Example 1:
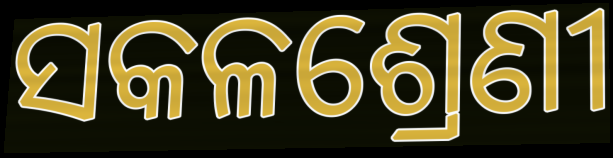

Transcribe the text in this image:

ସକଳଶ୍ରେଣୀ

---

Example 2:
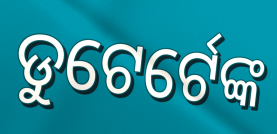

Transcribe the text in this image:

ଡୁଟେର୍ଟେଙ୍କ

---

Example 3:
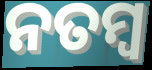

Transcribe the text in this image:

ନତମ୍ବ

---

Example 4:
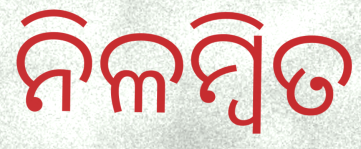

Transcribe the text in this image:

ନିଳମ୍ବିତ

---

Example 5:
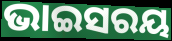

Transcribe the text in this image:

ଭାଇସରୟ